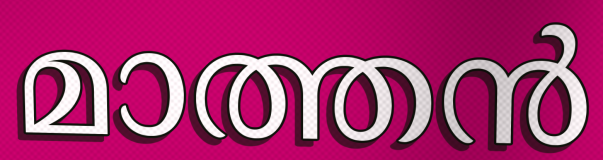
മാത്തൻ